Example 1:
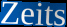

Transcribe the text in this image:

Zeits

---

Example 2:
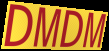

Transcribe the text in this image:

DMDM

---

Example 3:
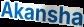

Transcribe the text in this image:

Akansha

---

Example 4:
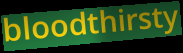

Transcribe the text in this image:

bloodthirsty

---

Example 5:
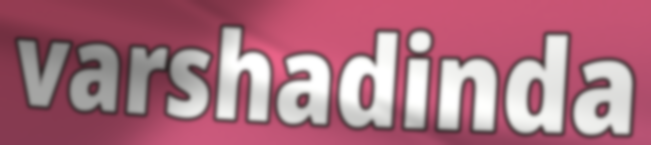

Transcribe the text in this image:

varshadinda